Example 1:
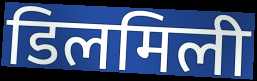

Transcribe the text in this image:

डिलमिली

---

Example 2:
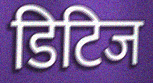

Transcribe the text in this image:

डिटिज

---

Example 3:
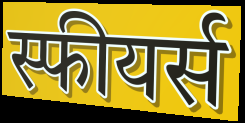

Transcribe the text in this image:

स्फीयर्स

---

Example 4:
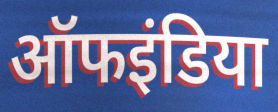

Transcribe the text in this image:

ऑफइंडिया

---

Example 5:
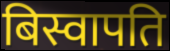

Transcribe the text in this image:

बिस्वापति